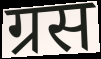
ग्रस